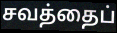
சவத்தைப்